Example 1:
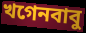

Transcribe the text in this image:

খগেনবাবু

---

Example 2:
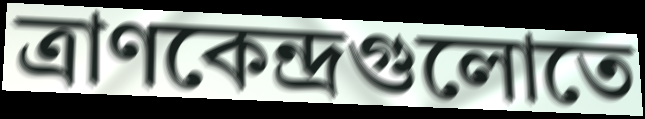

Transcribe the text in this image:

ত্রাণকেন্দ্রগুলোতে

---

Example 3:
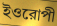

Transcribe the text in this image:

ইওরোপী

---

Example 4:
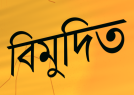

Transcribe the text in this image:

বিমুদিত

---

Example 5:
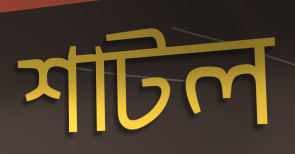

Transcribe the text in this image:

শাটল